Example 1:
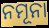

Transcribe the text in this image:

ନମୂନା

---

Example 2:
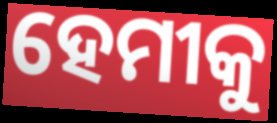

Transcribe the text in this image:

ହେମୀକୁ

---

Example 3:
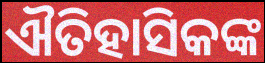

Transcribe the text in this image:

ଐତିହାସିକଙ୍କ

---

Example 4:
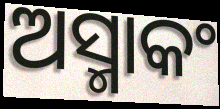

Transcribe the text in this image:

ଅସ୍ମାକଂ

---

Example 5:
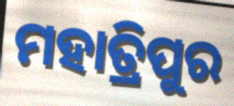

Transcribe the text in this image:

ମହାତ୍ରିପୁର